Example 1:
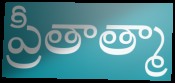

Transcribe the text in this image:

ప్రీతాత్మా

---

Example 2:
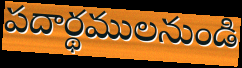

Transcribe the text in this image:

పదార్థములనుండి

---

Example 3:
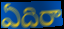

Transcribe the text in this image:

ఏదిరా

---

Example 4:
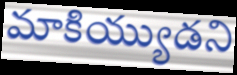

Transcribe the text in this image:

మాకియ్యుడని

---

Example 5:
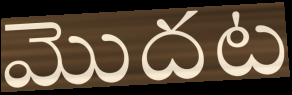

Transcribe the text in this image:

మొదట